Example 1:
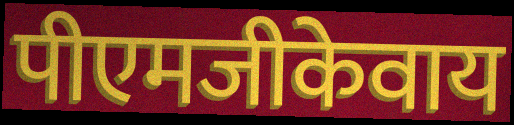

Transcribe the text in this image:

पीएमजीकेवाय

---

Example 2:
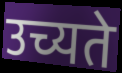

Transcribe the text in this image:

उच्यते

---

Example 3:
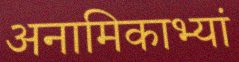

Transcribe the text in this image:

अनामिकाभ्यां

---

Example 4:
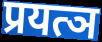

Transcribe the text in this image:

प्रयत्ञ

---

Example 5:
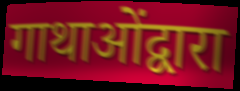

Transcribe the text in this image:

गाथाओंद्वारा